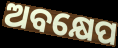
ଅବକ୍ଷେପ